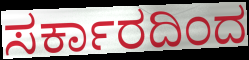
ಸರ್ಕಾರದಿಂದ